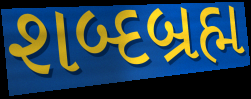
શબ્દબ્રહ્મ